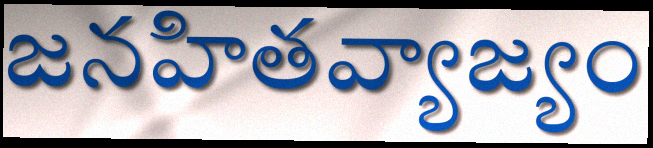
జనహితవ్యాజ్యం